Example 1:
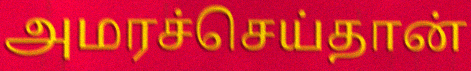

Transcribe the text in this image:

அமரச்செய்தான்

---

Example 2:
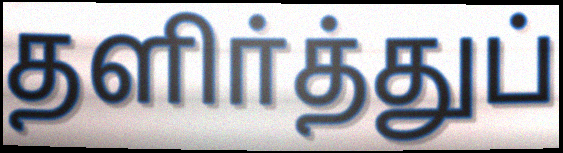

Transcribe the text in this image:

தளிர்த்துப்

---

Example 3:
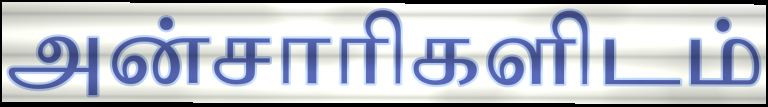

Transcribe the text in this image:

அன்சாரிகளிடம்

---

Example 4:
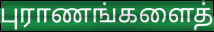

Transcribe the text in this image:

புராணங்களைத்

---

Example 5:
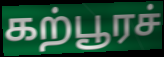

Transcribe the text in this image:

கற்பூரச்